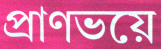
প্রাণভয়ে